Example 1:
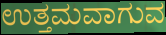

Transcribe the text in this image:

ಉತ್ತಮವಾಗುವ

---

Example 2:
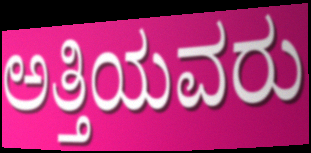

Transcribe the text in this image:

ಅತ್ತಿಯವರು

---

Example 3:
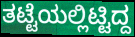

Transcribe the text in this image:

ತಟ್ಟೆಯಲ್ಲಿಟ್ಟಿದ್ದ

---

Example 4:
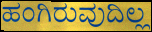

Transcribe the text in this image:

ಹಂಗಿರುವುದಿಲ್ಲ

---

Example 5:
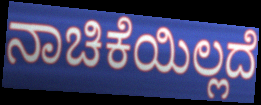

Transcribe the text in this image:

ನಾಚಿಕೆಯಿಲ್ಲದೆ